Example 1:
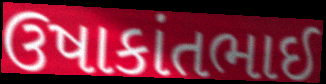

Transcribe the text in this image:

ઉષાકાંતભાઈ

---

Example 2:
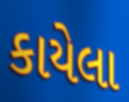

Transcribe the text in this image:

કાયેલા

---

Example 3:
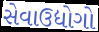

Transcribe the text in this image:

સેવાઉદ્યોગો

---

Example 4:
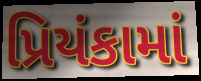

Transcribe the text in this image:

પ્રિયંકામાં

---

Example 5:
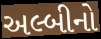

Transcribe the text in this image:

અલ્બીનો